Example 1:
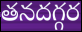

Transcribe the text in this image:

తనదగ్గర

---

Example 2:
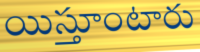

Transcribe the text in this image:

యిస్తూంటారు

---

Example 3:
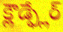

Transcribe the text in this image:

క్లౌడ్ఫ్లేర్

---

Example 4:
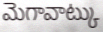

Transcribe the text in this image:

మెగావాట్కు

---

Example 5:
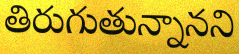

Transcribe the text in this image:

తిరుగుతున్నానని